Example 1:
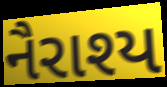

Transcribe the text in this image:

નૈરાશ્ય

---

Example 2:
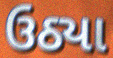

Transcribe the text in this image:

ઉઠ્યા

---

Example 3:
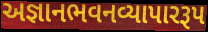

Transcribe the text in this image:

અજ્ઞાનભવનવ્યાપારરૂપ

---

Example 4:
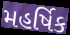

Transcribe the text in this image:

મહર્ષિક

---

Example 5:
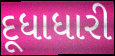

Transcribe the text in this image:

દૂધાધારી